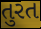
તુરત